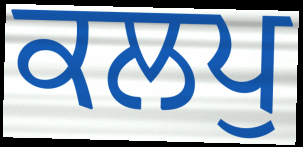
ਕਲਪੁ